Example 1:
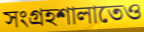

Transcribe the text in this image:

সংগ্রহশালাতেও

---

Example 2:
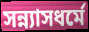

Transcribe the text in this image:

সন্ন্যাসধর্মে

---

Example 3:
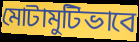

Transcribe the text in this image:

মোটামুটিভাবে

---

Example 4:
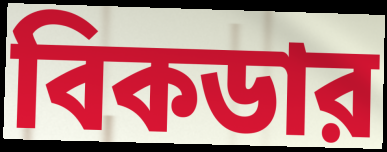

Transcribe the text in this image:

বিকডার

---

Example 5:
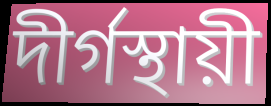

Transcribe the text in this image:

দীর্গস্থায়ী